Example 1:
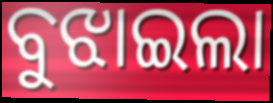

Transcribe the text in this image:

ବୁଝାଇଲା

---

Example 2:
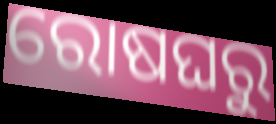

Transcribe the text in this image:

ରୋଷଘରୁ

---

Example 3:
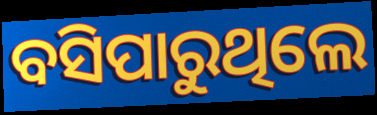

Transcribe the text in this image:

ବସିପାରୁଥିଲେ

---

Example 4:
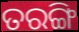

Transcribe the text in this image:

ତରଙ୍ଗି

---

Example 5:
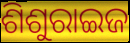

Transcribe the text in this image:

ଶିଶୁରାଇଜ